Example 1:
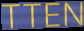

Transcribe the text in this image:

TTEN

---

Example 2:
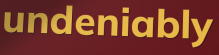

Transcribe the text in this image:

undeniably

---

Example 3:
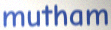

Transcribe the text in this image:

mutham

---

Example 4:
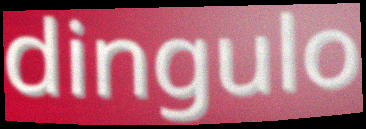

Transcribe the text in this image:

dingulo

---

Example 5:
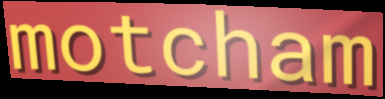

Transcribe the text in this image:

motcham